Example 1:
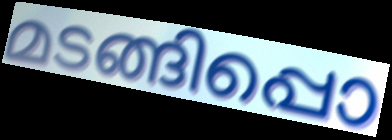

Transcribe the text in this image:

മടങ്ങിപ്പൊ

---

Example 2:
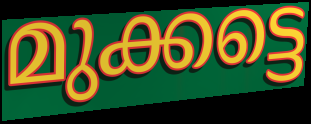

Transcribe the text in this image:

മുക്കട്ടെ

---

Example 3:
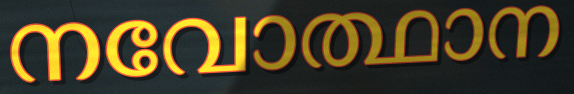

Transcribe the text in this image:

നവോത്ഥാന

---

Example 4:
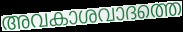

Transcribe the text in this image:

അവകാശവാദത്തെ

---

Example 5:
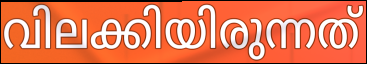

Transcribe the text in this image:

വിലക്കിയിരുന്നത്